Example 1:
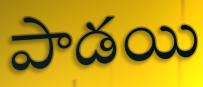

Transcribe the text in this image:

పాడయి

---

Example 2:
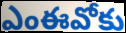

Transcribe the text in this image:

ఎంఈవోకు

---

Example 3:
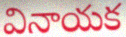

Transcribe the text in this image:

వినాయక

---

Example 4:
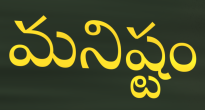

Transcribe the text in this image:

మనిష్టం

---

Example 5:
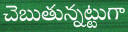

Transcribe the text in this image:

చెబుతున్నట్టుగా